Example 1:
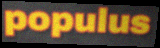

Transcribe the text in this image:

populus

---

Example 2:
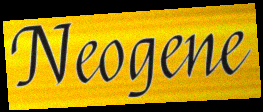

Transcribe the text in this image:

Neogene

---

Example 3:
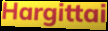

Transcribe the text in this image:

Hargittai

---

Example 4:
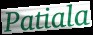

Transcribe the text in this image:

Patiala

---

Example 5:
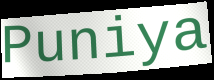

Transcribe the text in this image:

Puniya